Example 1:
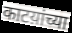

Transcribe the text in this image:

काटय़ांच्या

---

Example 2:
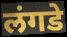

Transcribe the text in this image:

लंगडे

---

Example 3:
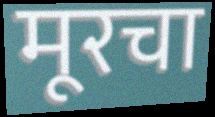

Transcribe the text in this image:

मूरचा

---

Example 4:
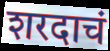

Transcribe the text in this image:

शरदाचं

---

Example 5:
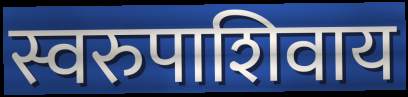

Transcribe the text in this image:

स्वरुपाशिवाय